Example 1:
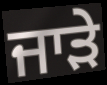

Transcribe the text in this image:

ਜਾੜੇ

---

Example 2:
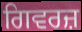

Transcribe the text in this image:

ਗਿਵਰਜ਼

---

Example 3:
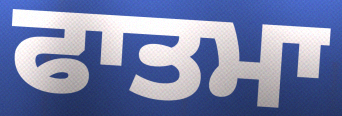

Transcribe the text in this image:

ਫਾਤਮਾ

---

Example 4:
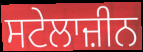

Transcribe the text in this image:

ਸਟੇਲਾਜ਼ੀਨ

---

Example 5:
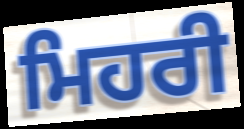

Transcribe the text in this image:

ਮਿਹਰੀ